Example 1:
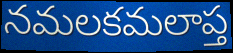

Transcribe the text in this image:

నమలకమలాప్త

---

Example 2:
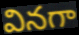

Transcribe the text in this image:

వినగా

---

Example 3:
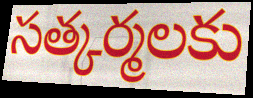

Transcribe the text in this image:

సత్కర్మలకు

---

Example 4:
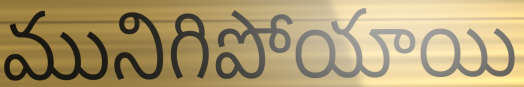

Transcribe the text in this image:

మునిగిపోయాయి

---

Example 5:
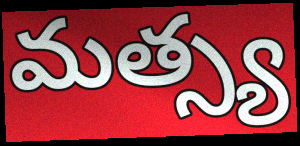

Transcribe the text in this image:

మత్స్య